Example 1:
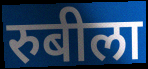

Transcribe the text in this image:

रुबीला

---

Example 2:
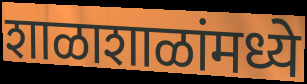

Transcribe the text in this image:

शाळाशाळांमध्ये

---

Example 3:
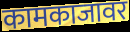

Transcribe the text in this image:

कामकाजावर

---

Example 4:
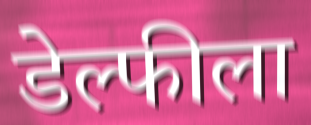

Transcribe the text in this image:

डेल्फीला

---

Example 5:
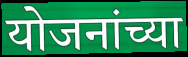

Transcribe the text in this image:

योजनांच्या